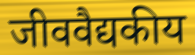
जीववैद्यकीय